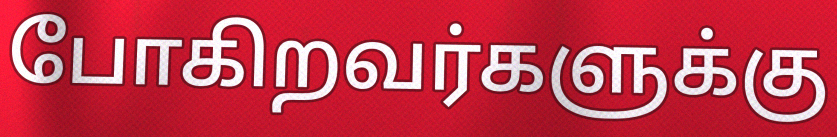
போகிறவர்களுக்கு